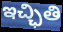
ఇచ్ఛితి